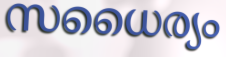
സധൈര്യം